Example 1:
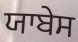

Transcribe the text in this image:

ਯਾਬੇਸ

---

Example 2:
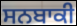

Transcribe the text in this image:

ਸਨਬਾਕੀ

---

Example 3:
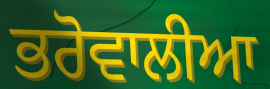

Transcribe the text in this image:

ਭਰੋਵਾਲੀਆ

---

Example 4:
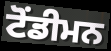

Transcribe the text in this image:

ਟੋਂਡੀਮਨ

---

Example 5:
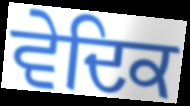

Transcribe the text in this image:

ਵੇਦਿਕ